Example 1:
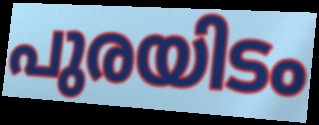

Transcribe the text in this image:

പുരയിടം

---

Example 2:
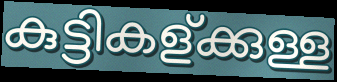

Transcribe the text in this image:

കുട്ടികള്ക്കുള്ള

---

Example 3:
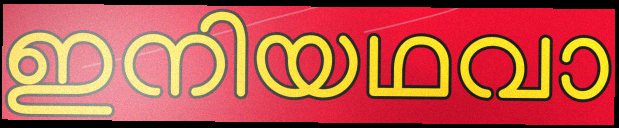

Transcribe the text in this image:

ഇനിയഥവാ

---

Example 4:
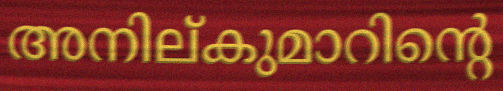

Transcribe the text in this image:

അനില്കുമാറിന്റെ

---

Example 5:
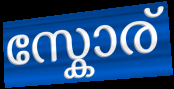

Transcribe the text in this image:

സ്കോര്